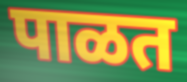
पाळत